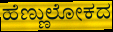
ಹೆಣ್ಣುಲೋಕದ